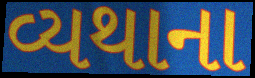
વ્યથાના